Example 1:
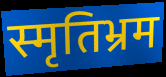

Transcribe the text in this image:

स्मृतिभ्रम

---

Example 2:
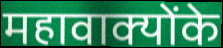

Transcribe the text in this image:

महावाक्योंके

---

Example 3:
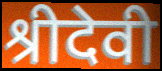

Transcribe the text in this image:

श्रीदेवी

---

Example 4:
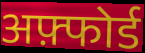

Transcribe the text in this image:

अफ़्फोर्ड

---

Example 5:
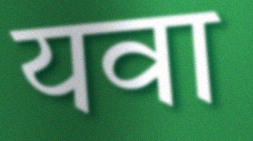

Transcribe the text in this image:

यवा